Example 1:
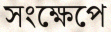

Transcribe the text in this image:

সংক্ষেপে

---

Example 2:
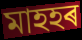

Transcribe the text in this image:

মাহহৰ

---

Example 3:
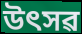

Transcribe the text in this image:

উৎসৱ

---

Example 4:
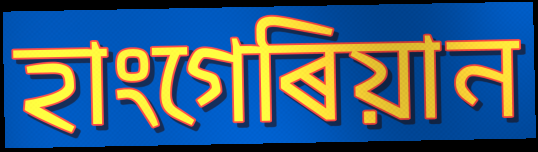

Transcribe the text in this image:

হাংগেৰিয়ান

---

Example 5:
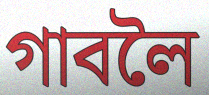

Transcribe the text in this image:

গাবলৈ